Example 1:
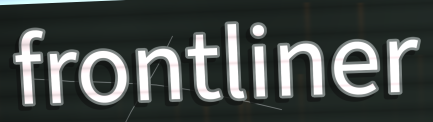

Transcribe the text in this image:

frontliner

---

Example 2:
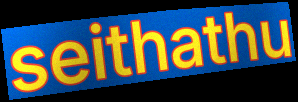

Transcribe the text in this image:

seithathu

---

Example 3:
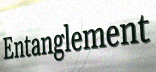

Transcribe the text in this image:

Entanglement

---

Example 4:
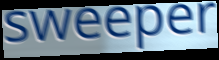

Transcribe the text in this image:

sweeper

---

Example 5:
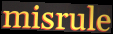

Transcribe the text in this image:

misrule